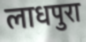
लाधपुरा